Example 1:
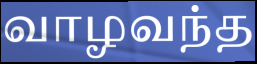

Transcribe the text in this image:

வாழவந்த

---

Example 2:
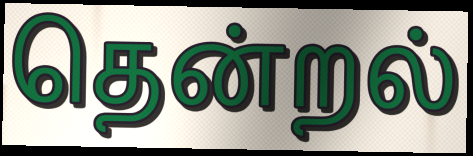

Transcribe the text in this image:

தென்றல்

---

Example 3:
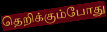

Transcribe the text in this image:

தெறிக்கும்போது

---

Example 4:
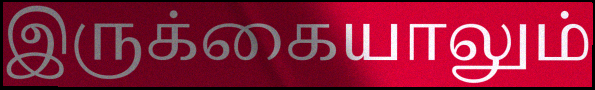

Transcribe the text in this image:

இருக்கையாலும்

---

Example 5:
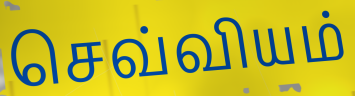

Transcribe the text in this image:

செவ்வியம்